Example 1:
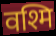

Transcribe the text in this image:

वश्मि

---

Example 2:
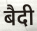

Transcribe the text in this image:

बैदी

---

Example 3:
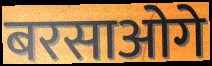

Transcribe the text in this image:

बरसाओगे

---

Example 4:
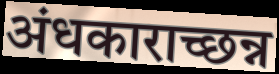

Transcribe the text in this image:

अंधकाराच्छन्न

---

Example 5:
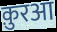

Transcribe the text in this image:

क़ुरआ